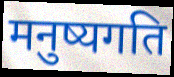
मनुष्यगति